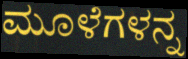
ಮೂಳೆಗಳನ್ನ